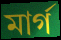
মার্গ